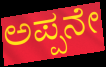
ಅಪ್ಪನೇ